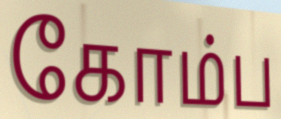
கோம்ப